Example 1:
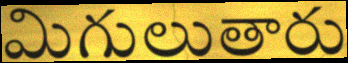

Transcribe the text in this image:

మిగులుతారు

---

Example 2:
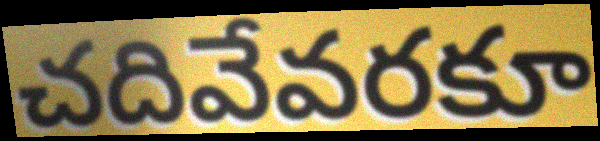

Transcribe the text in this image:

చదివేవరకూ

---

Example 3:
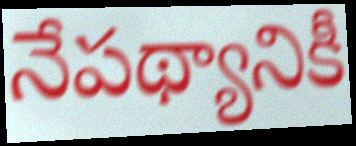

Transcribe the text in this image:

నేపథ్యానికీ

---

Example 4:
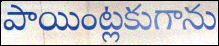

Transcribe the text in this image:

పాయింట్లకుగాను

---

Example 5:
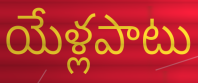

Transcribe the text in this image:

యేళ్లపాటు